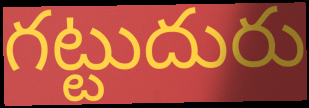
గట్టుదురు